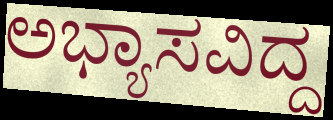
ಅಭ್ಯಾಸವಿದ್ದ